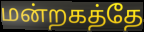
மன்றகத்தே